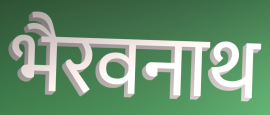
भैरवनाथ